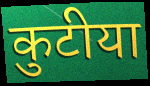
कुटीया